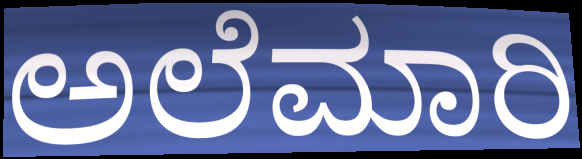
ಅಲೆಮಾರಿ